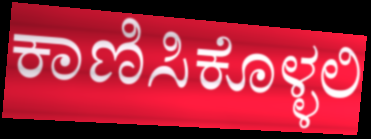
ಕಾಣಿಸಿಕೊಳ್ಳಲಿ